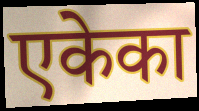
एकेका